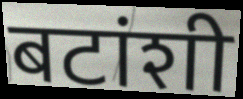
बटांशी